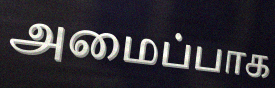
அமைப்பாக